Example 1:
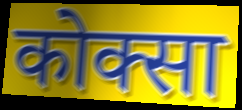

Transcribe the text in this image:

कोक्सा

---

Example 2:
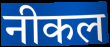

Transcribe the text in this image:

नीकल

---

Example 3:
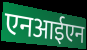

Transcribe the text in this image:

एनआईएन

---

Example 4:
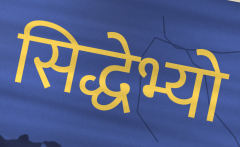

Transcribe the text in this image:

सिद्धेभ्यो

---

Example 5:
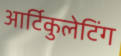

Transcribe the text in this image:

आर्टिकुलेटिंग